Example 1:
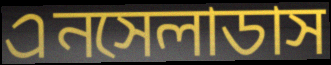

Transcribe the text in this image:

এনসেলাডাস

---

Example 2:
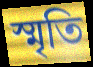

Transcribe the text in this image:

স্মৃতি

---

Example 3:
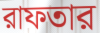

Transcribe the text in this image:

রাফতার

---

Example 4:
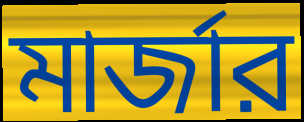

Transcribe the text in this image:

মার্জার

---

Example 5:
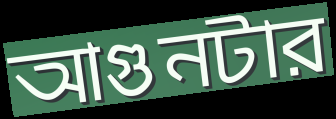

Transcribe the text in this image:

আগুনটার